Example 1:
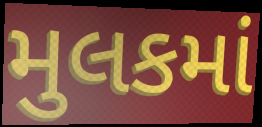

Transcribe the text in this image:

મુલકમાં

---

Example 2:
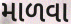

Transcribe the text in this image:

માળવા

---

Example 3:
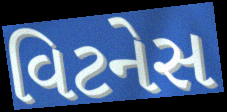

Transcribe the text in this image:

વિટનેસ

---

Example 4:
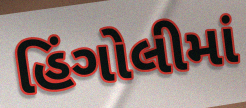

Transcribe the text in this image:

હિંગોલીમાં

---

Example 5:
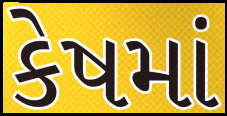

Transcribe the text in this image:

કેષમાં